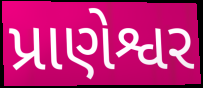
પ્રાણેશ્વર